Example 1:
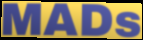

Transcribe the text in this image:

MADs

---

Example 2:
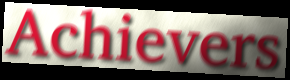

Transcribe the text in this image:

Achievers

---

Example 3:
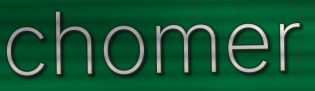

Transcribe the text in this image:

chomer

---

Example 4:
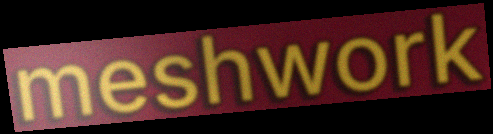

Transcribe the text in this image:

meshwork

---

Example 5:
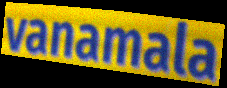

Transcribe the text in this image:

vanamala